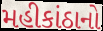
મહીકાંઠાનો